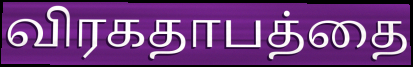
விரகதாபத்தை